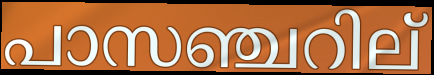
പാസഞ്ചറില്